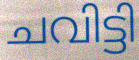
ചവിട്ടി